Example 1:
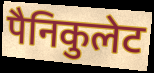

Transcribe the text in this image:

पैनिकुलेट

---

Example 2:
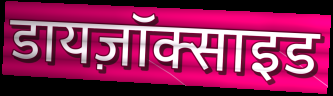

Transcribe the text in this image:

डायज़ॉक्साइड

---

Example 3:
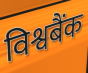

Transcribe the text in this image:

विश्वबैंक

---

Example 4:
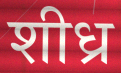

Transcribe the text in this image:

शीध्र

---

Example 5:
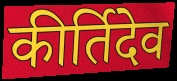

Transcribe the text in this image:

कीर्तिदेव